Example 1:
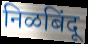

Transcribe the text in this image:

निळबिंदू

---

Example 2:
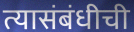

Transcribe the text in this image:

त्यासंबंधीची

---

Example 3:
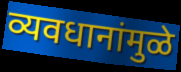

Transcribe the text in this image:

व्यवधानांमुळे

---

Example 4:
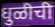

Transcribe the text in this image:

धुळीची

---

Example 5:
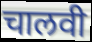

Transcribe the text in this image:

चालवी